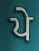
ਪੇ